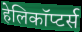
हेलिकॉप्टर्स